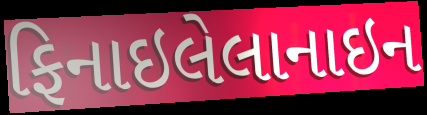
ફિનાઇલેલાનાઇન